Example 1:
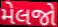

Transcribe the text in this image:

મેલજો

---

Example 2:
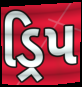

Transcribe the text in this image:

ડ્રિપ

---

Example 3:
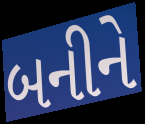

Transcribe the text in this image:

બનીને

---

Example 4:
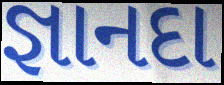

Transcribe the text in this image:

જ્ઞાનદા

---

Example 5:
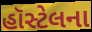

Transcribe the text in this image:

હૉસ્ટેલના